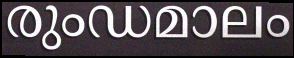
രുംഡമാലം